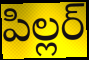
పిల్లర్